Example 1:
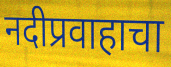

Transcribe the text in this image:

नदीप्रवाहाचा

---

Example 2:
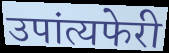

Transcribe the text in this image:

उपांत्यफेरी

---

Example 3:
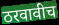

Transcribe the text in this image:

ठरवावीच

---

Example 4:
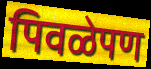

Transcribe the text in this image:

पिवळेपण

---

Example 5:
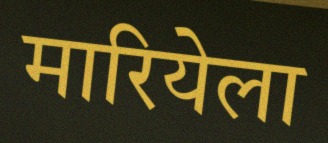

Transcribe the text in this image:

मारियेला